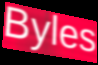
Byles